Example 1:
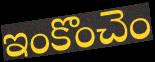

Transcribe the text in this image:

ఇంకొంచెం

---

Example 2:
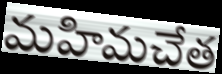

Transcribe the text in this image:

మహిమచేత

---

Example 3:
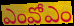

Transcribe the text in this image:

ఎంవోఎం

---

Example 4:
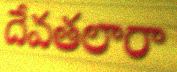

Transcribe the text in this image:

దేవతలారా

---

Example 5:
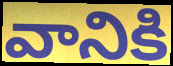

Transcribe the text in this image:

వానికి